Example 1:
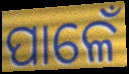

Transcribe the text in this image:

ପାଳେଁ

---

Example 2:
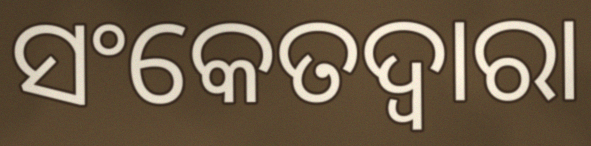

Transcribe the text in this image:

ସଂକେତଦ୍ୱାରା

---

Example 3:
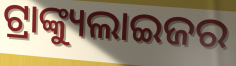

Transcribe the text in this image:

ଟ୍ରାଙ୍କ୍ୟୁଲାଇଜର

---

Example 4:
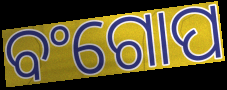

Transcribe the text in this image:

ବଂଗୋପ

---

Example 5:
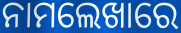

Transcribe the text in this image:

ନାମଲେଖାରେ